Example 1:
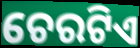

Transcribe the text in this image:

ଚେରଟିଏ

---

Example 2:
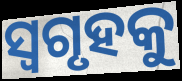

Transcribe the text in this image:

ସ୍ୱଗୃହକୁ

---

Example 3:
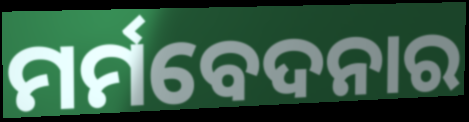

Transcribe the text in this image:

ମର୍ମବେଦନାର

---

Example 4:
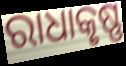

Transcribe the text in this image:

ରାଧାକୃଷ୍ଣ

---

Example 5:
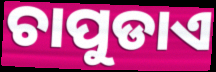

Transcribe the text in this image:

ଚାପୁଡାଏ